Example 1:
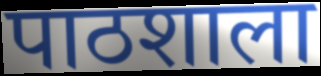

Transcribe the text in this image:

पाठशाला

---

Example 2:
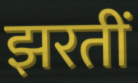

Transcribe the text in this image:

झरतीं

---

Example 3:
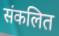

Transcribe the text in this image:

संकलित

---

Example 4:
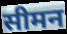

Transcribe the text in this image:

सीमन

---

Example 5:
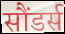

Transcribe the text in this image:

सौंडर्स